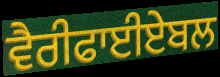
ਵੈਰੀਫਾਈਏਬਲ